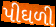
પીઘળી